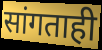
सांगताही